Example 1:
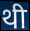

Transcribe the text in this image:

थी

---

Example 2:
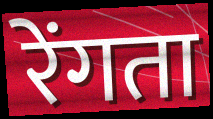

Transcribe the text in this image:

रेंगता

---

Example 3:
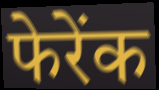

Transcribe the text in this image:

फेरेंक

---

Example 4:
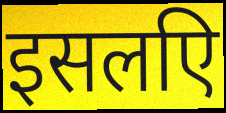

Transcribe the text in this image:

इसलएि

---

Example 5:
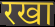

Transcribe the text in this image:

रखा